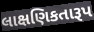
લાક્ષણિકતારૂપ